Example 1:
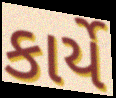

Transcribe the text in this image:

કાર્યે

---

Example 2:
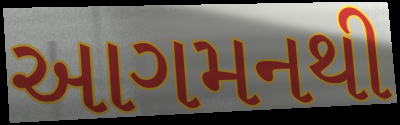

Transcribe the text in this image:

આગમનથી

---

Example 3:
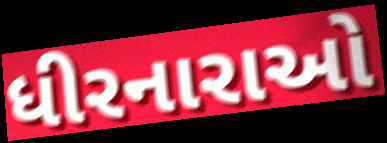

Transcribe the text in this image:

ધીરનારાઓ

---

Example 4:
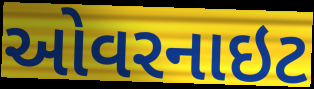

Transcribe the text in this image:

ઓવરનાઇટ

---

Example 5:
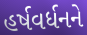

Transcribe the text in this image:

હર્ષવર્ધનને